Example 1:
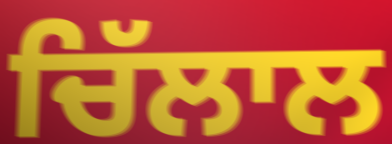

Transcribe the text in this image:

ਚਿੱਲਾਲ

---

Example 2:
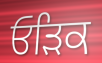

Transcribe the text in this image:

ਓੜਿਕ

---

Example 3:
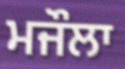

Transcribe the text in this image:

ਮਜੌਲਾ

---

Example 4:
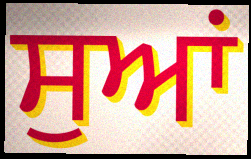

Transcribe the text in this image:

ਸੁਆਂ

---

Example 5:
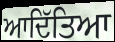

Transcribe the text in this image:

ਆਦਿੱਤਿਆ